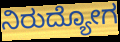
ನಿರುದ್ಯೋಗ